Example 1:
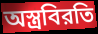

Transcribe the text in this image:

অস্ত্রবিরতি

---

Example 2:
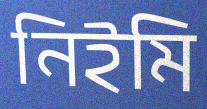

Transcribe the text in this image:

নিইমি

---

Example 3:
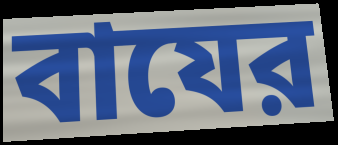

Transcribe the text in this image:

বাযের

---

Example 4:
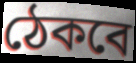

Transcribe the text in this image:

ঠেকবে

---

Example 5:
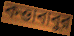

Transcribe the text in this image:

কত্তাবাবুর